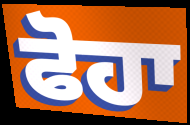
ਫੋਹਾ